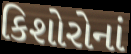
કિશોરોનાં